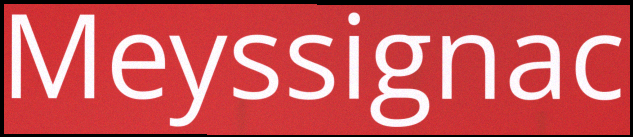
Meyssignac